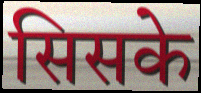
सिसके